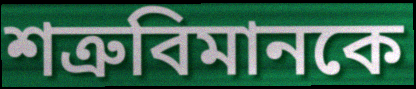
শত্রুবিমানকে